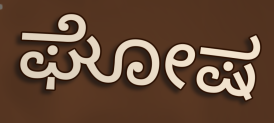
ಘೋಷ